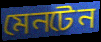
মেনটেন